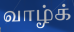
வாழ்க்